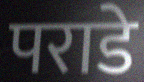
पराडे